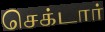
செக்டார்